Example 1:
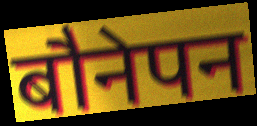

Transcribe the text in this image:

बौनेपन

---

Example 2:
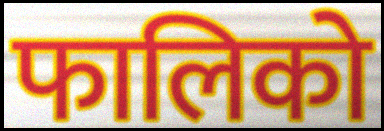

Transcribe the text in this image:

फालिको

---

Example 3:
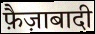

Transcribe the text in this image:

फ़ैज़ाबादी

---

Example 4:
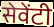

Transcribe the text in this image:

सेवेंटी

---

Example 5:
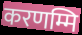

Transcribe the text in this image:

करणम्मि